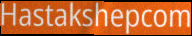
Hastakshepcom